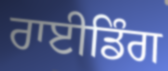
ਰਾਈਡਿੰਗ